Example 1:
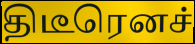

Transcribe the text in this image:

திடீரெனச்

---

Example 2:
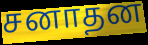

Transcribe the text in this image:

சனாதன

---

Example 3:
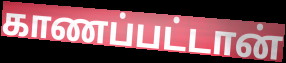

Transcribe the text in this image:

காணப்பட்டான்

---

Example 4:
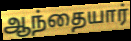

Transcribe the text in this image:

ஆந்தையார்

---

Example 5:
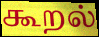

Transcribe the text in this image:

கூறல்